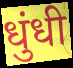
धुंधी